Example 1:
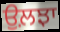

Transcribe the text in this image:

ਉਲ਼ਝਾ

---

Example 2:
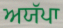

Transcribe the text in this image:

ਅਯੱਪਾ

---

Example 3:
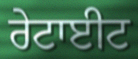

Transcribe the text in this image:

ਰੇਟਾਈਟ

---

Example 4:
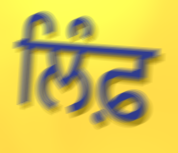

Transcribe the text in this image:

ਲਿੰਫ਼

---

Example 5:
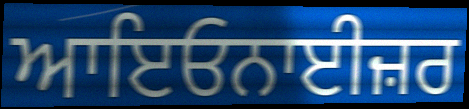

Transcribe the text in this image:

ਆਇਓਨਾਈਜ਼ਰ